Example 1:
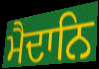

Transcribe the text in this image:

ਮੈਦਾਨਿ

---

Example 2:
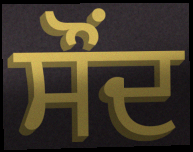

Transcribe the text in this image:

ਸੌਂਦ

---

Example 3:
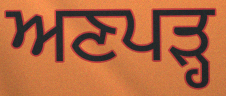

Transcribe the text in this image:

ਅਣਪੜ੍ਹ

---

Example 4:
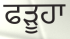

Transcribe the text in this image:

ਫੜੂਹਾ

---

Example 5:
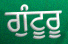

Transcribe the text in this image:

ਗੁੰਟੂਰੂ